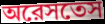
অরেসতেস